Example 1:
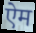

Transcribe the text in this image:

ऐम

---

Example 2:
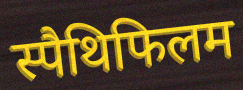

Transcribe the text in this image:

स्पैथिफिलम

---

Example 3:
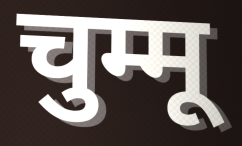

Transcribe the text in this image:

चुम्मू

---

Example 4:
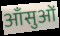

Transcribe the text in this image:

आँसुओं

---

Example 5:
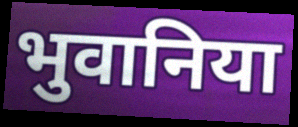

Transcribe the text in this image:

भुवानिया